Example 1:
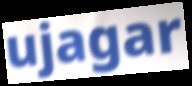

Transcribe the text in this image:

ujagar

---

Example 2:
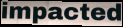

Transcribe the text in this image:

impacted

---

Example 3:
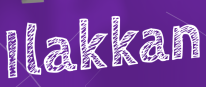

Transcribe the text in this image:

Ilakkan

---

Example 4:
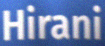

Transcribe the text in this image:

Hirani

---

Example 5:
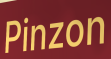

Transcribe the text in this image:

Pinzon